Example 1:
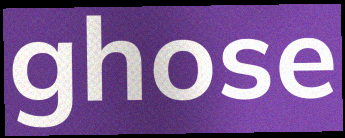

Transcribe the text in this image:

ghose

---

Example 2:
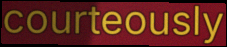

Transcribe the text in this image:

courteously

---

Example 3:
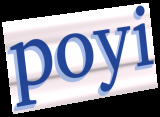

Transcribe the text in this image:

poyi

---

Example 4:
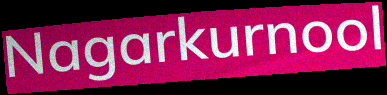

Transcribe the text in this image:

Nagarkurnool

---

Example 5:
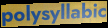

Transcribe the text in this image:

polysyllabic